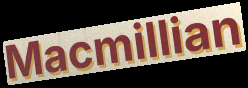
Macmillian